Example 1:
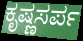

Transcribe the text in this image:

ಕೃಷ್ಣಸರ್ಪ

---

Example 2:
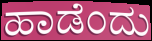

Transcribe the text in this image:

ಹಾಡೆಂದು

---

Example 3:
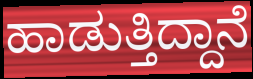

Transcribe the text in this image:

ಹಾಡುತ್ತಿದ್ದಾನೆ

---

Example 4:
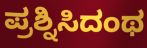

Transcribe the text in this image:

ಪ್ರಶ್ನಿಸಿದಂಥ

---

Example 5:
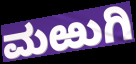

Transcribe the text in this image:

ಮಱುಗಿ